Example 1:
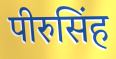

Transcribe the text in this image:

पीरुसिंह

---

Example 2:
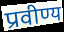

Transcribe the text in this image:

प्रवीण्य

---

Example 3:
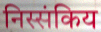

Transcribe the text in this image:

निस्संकिय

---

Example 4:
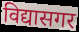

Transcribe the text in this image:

विद्यासगर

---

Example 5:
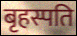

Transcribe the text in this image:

बृहस्पति